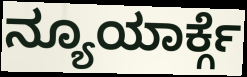
ನ್ಯೂಯಾರ್ಕ್ಗೆ